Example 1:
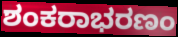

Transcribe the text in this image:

ಶಂಕರಾಭರಣಂ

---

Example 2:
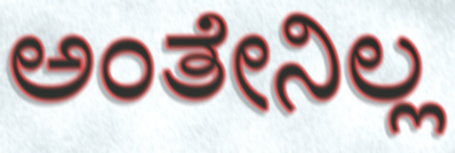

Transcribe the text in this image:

ಅಂತೇನಿಲ್ಲ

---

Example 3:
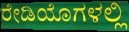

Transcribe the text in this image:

ರೇಡಿಯೊಗಳಲ್ಲಿ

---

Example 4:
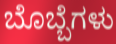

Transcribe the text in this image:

ಬೊಬ್ಬೆಗಳು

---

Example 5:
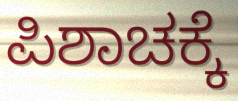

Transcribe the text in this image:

ಪಿಶಾಚಕ್ಕೆ